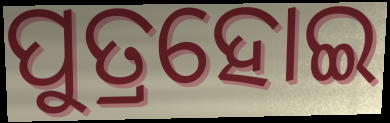
ପୁତ୍ରହୋଇ